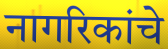
नागरिकांचे